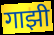
गाझी